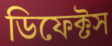
ডিফেক্টস